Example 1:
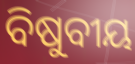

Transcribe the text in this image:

ବିଷୁବୀୟ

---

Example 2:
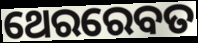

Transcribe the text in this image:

ଥେରରେବତ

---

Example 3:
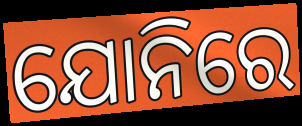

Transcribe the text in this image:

ଯୋନିରେ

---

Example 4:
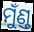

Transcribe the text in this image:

ମୁଁଣ୍ଡ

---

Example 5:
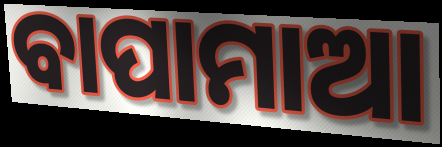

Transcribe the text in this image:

ବାପାମାଆ